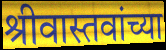
श्रीवास्तवांच्या